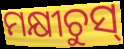
ମକ୍ଷୀଚୁସ୍